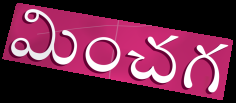
మించగ